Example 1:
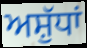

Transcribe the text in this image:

ਅਸ਼ੁੱਧਾਂ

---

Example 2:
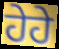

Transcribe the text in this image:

ਹੇਹੇ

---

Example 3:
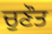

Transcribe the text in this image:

ਚੁਣੌਤ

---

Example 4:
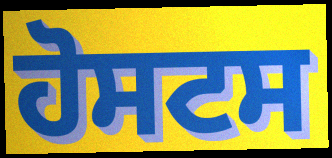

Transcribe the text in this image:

ਹੋਸਟਸ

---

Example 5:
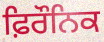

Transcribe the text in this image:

ਫ਼ਿਰੌਨਿਕ